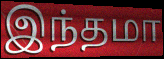
இந்தமா